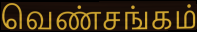
வெண்சங்கம்